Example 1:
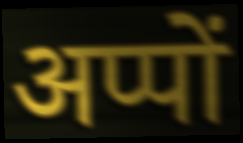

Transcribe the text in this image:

अप्पों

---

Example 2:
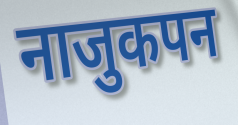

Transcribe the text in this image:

नाजुकपन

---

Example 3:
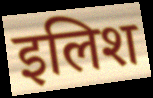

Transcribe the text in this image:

इलिश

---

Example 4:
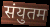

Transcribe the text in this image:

संयुतम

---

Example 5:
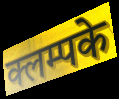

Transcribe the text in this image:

क्लम्पके